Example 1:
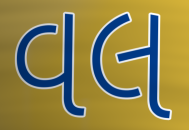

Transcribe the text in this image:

વલ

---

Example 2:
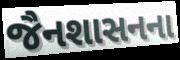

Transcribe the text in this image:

જૈનશાસનના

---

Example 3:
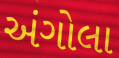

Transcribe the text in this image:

અંગોલા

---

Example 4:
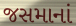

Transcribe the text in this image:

જસમાનાં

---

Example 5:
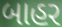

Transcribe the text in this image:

બાહર